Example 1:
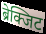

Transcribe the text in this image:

ब्रेक्जिट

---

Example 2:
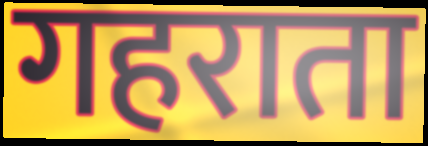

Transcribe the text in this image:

गहराता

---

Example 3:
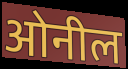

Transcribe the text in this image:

ओनील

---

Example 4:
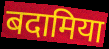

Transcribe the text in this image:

बदामिया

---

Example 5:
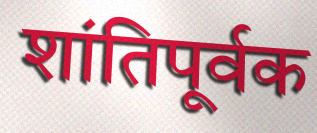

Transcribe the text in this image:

शांतिपूर्वक